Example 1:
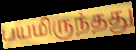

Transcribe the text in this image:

பயமிருந்தது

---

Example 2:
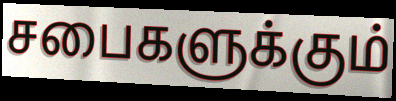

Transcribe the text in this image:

சபைகளுக்கும்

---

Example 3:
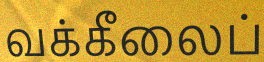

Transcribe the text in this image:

வக்கீலைப்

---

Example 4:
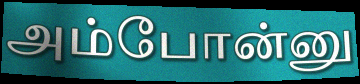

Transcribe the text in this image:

அம்போன்னு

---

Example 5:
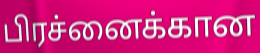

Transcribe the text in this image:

பிரச்னைக்கான